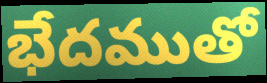
భేదముతో